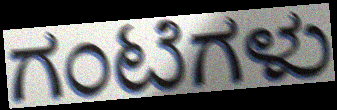
ಗಂಟೆಗಳು